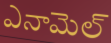
ఎనామెల్